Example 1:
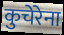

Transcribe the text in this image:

कुचेरेना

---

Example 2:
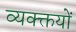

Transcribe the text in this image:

व्यक्क्तयों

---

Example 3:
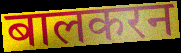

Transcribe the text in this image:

बालकरन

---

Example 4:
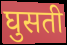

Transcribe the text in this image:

घुसती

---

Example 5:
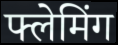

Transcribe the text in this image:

फ्लेमिंग